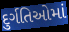
દુર્ગતિઓમાં